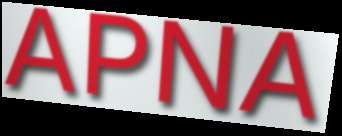
APNA